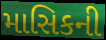
માસિકની